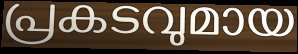
പ്രകടവുമായ